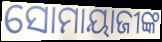
ସୋମାୟାଜୀଙ୍କ